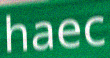
haec